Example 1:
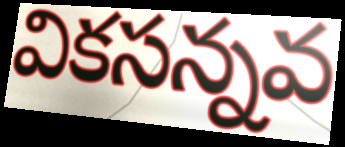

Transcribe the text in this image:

వికసన్నవ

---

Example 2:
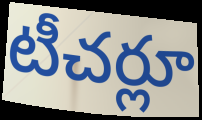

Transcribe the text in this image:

టీచర్లూ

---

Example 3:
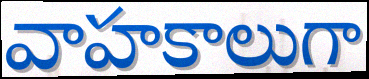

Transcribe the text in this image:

వాహకాలుగా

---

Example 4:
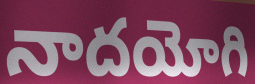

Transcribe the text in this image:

నాదయోగి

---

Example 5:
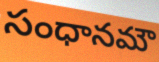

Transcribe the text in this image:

సంధానమౌ